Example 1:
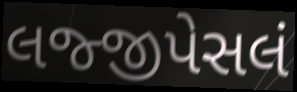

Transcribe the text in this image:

લજ્જીપેસલં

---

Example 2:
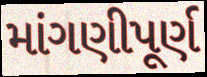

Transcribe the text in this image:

માંગણીપૂર્ણ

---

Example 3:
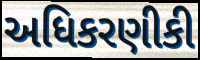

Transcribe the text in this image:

અધિકરણીકી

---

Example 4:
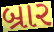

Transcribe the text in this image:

બ્રાર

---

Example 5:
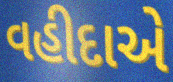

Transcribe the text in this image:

વહીદાએ